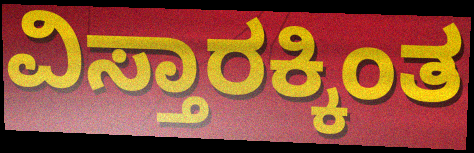
ವಿಸ್ತಾರಕ್ಕಿಂತ